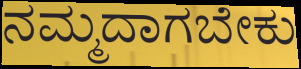
ನಮ್ಮದಾಗಬೇಕು